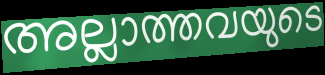
അല്ലാത്തവയുടെ